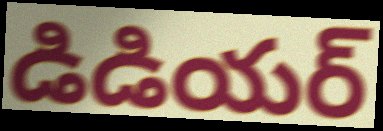
డిడియర్